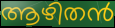
ആഴിതൻ